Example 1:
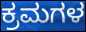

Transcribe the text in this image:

ಕ್ರಮಗಳ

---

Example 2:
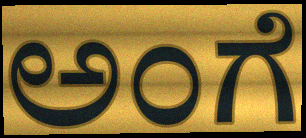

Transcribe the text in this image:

ಅಂಗೆ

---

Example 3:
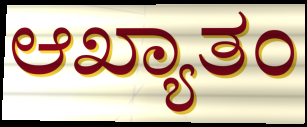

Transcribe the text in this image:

ಆಖ್ಯಾತಂ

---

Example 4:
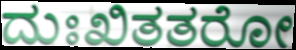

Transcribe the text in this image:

ದುಃಖಿತತರೋ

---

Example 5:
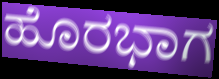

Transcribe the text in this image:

ಹೊರಭಾಗ